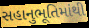
સહાનુભૂતિમાંથી